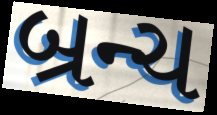
બ્રન્ચ